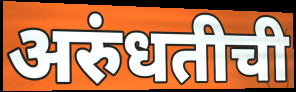
अरुंधतीची